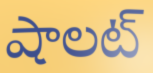
షాలట్